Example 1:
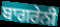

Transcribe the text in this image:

ਬਾਗਰੇਨੀ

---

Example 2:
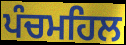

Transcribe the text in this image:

ਪੰਚਮਹਿਲ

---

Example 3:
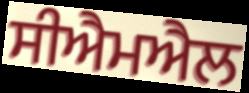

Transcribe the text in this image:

ਸੀਐਮਐਲ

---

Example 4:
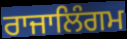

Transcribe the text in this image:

ਰਾਜਾਲਿੰਗਮ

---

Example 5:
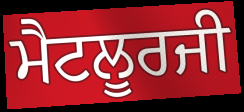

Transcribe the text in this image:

ਮੈਟਲੂਰਜੀ